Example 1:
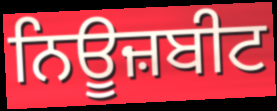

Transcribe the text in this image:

ਨਿਊਜ਼ਬੀਟ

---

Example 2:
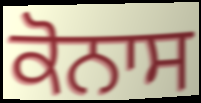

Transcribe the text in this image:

ਕੋਨਾਸ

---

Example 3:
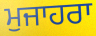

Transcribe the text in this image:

ਮੁਜਾਹਰਾ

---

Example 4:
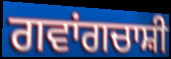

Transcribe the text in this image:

ਗਵਾਂਗਚਾਸ਼ੀ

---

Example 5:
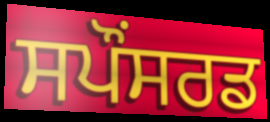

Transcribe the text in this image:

ਸਪੌਂਸਰਡ